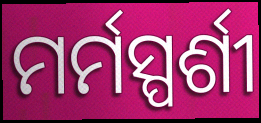
ମର୍ମସ୍ପର୍ଶୀ